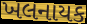
ખલનાયક